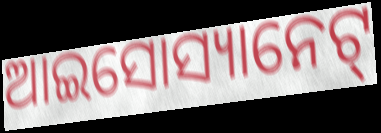
ଆଇସୋସ୍ୟାନେଟ୍